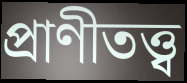
প্রাণীতত্ত্ব